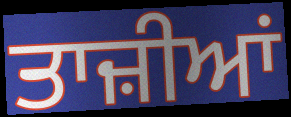
ਤਾਜ਼ੀਆਂ